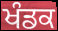
ਖੰਡਕ